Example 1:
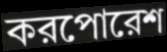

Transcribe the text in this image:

করপোরেশ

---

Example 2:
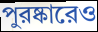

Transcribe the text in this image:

পুরষ্কারেও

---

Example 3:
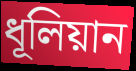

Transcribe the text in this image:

ধূলিয়ান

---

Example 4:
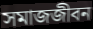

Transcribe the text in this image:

সমাজজীবন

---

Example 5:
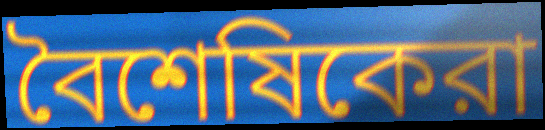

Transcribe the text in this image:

বৈশেষিকেরা